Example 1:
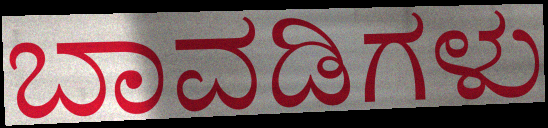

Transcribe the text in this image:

ಬಾವಡಿಗಳು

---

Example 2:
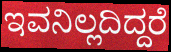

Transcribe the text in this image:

ಇವನಿಲ್ಲದಿದ್ದರೆ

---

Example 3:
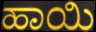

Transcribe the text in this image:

ಹಾಯಿ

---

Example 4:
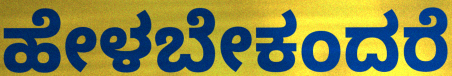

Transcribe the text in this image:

ಹೇಳಬೇಕಂದರೆ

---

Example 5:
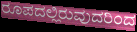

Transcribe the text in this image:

ರೂಪದಲ್ಲಿರುವುದರಿಂದ